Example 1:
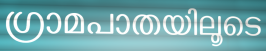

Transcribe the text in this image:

ഗ്രാമപാതയിലൂടെ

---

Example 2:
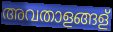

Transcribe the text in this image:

അവതാളങ്ങള്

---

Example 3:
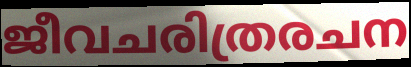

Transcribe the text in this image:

ജീവചരിത്രരചന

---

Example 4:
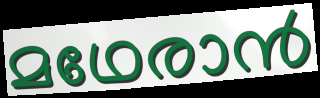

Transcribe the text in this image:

മഥേരാൻ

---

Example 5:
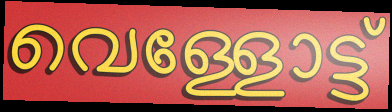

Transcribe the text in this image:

വെള്ളോട്ട്